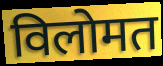
विलोमत